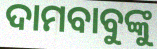
ଦାମବାବୁଙ୍କୁ